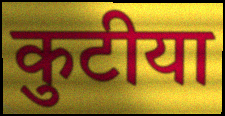
कुटीया